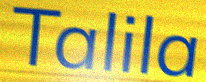
Talila